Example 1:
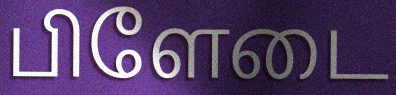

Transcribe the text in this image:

பிளேடை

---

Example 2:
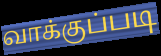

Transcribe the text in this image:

வாக்குப்படி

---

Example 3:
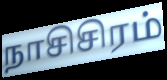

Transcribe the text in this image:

நாசிசிரம்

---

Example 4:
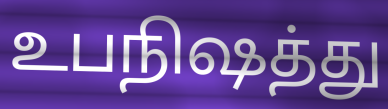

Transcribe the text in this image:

உபநிஷத்து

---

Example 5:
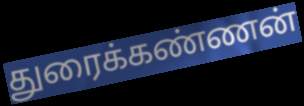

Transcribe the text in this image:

துரைக்கண்ணன்